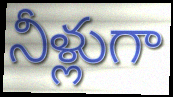
నీళ్లుగా